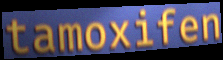
tamoxifen